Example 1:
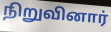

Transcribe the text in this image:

நிறுவினார்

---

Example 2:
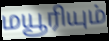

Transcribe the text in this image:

மயூரியும்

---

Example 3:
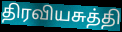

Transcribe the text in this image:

திரவியசுத்தி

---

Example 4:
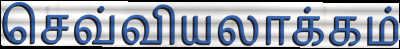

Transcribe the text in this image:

செவ்வியலாக்கம்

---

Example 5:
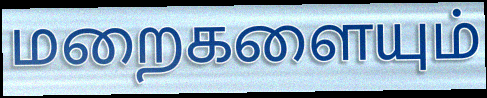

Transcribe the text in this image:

மறைகளையும்